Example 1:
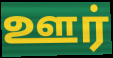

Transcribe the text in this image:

ஊர்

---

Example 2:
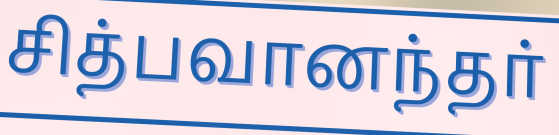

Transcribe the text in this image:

சித்பவானந்தர்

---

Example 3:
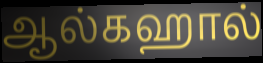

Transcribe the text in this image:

ஆல்கஹால்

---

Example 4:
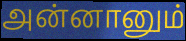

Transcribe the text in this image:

அன்னானும்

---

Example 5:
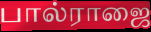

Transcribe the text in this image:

பால்ராஜை